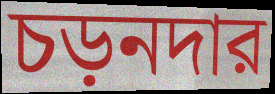
চড়নদার